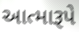
આત્મારૂપે